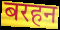
बरहन